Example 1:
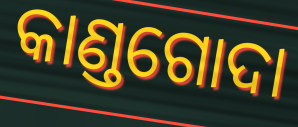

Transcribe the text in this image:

କାଣ୍ଡଗୋଦା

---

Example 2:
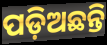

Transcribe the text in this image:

ପଡ଼ିଅଛନ୍ତି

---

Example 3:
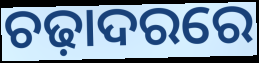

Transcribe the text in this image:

ଚଢ଼ାଦରରେ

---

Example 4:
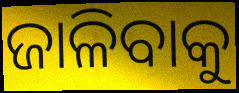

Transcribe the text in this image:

ଜାଳିବାକୁ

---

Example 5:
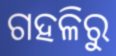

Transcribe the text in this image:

ଗହଳିରୁ